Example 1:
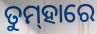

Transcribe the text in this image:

ତୁମ୍‌ହାରେ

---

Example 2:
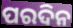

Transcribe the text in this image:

ପରଦିନ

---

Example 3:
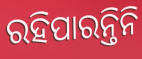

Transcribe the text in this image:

ରହିପାରନ୍ତିନି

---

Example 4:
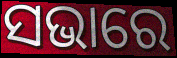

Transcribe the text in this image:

ସଭାରେ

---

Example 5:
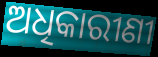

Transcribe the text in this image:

ଅଧିକାରୀଣୀ